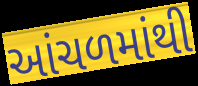
આંચળમાંથી